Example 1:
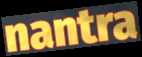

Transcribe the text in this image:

nantra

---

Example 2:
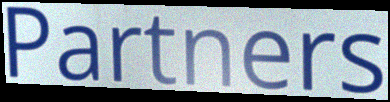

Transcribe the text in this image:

Partners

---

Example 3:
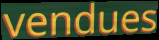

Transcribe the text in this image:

vendues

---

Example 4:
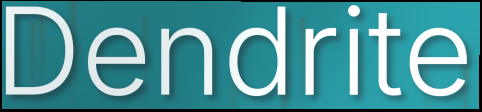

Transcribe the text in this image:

Dendrite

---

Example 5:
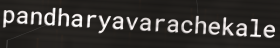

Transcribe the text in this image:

pandharyavarachekale